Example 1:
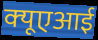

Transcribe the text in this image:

क्यूएआई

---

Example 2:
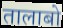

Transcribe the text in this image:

तालाबो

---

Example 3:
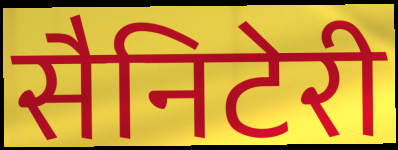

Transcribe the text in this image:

सैनिटेरी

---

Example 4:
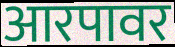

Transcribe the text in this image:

आरपावर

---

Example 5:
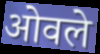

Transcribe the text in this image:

ओवले